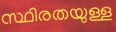
സ്ഥിരതയുള്ള